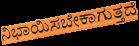
ನಿಭಾಯಿಸಬೇಕಾಗುತ್ತದೆ